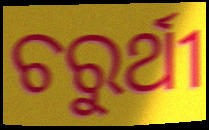
ଚରୁର୍ଥୀ